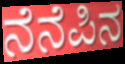
ನೆನೆಪಿನ